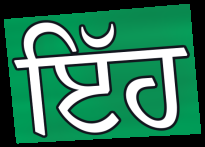
ਇੱਹ